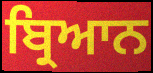
ਬ੍ਰਿਆਨ